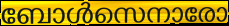
ബോൾസെനാരോ